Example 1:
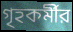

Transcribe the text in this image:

গৃহকর্মীর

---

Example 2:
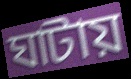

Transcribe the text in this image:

ঘাটায়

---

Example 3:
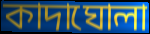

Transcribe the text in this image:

কাদাঘোলা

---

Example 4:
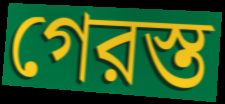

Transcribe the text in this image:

গেরস্ত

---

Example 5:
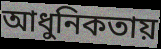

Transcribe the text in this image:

আধুনিকতায়